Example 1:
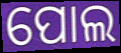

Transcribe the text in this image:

ପୋଲ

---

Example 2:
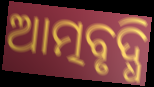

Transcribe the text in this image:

ଆତ୍ମବୃଦ୍ଧି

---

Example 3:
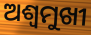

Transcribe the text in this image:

ଅଶ୍ୱମୁଖୀ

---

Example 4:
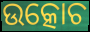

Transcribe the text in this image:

ଉତ୍କୋଚ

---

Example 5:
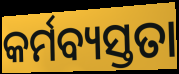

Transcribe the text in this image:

କର୍ମବ୍ୟସ୍ତତା